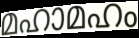
മഹാമഹം